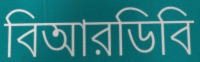
বিআরডিবি